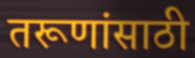
तरूणांसाठी